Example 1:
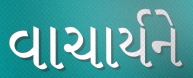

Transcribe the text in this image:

વાચાર્યને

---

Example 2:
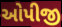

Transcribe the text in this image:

ઓપીજી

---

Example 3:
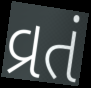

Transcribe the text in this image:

વ્રતં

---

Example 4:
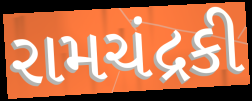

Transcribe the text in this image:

રામચંદ્રકી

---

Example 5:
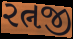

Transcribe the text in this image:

રત્નજી